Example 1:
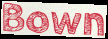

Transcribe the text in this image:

Bown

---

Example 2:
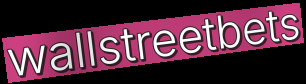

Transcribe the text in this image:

wallstreetbets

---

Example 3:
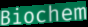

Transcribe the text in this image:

Biochem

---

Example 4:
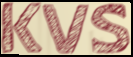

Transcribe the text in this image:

KVS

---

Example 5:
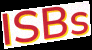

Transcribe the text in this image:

ISBs